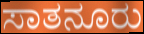
ಸಾತನೂರು